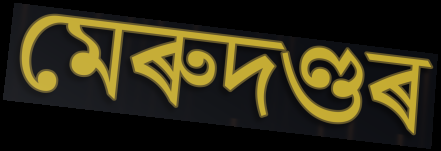
মেৰুদণ্ডৰ